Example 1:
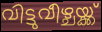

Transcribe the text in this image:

വിട്ടുവീഴ്ചയ്ക്ക്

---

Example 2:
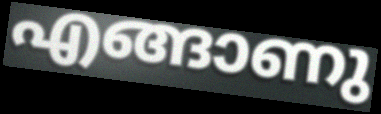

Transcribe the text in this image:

എങ്ങാണു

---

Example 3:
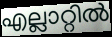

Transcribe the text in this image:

എല്ലാറ്റിൽ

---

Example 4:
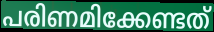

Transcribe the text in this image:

പരിണമിക്കേണ്ടത്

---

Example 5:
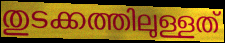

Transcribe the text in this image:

തുടക്കത്തിലുള്ളത്